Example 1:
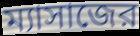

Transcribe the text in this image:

ম্যাসাজের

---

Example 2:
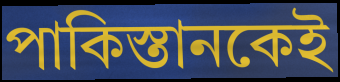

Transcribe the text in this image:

পাকিস্তানকেই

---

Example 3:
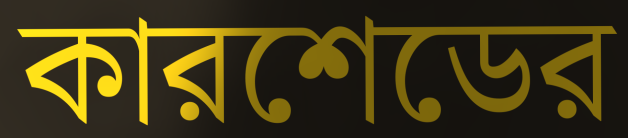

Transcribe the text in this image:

কারশেডের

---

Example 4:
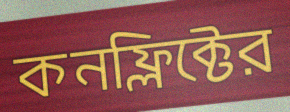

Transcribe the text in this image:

কনফ্লিক্টের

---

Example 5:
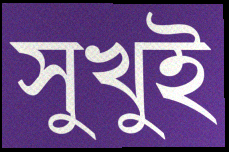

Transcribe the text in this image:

সুখুই